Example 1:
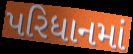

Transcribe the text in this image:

પરિધાનમાં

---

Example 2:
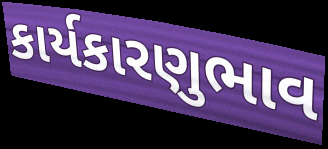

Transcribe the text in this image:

કાર્યકારણુભાવ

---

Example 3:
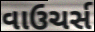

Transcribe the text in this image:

વાઉચર્સ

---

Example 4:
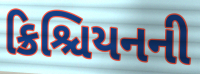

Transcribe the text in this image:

ક્રિશ્ચિયનની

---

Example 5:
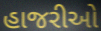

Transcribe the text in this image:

હાજરીઓ